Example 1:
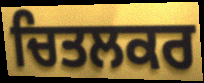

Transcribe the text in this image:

ਚਿਤਲਕਰ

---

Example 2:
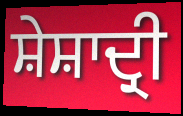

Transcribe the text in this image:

ਸ਼ੇਸ਼ਾਦ੍ਰੀ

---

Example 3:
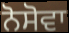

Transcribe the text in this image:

ਨੋਸੋਵਾ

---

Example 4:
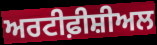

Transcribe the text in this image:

ਅਰਟੀਫ਼ੀਸ਼ੀਅਲ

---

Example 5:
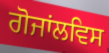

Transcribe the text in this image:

ਗੋਜਾਂਲਵਿਸ